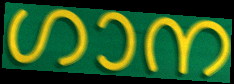
ഗാന